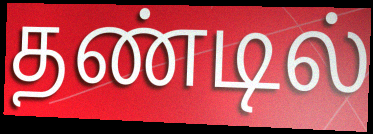
தண்டில்